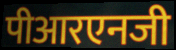
पीआरएनजी